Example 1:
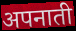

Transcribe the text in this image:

अपनाती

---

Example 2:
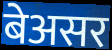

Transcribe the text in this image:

बेअसर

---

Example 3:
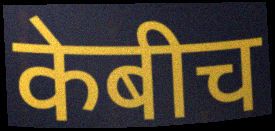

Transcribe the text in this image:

केबीच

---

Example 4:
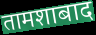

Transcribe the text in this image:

तामशाबाद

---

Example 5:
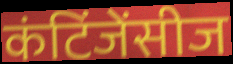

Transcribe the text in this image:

कंटिंजेंसीज